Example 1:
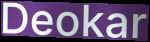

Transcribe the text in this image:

Deokar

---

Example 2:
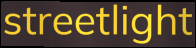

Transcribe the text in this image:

streetlight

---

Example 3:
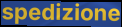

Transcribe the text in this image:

spedizione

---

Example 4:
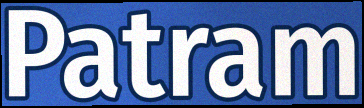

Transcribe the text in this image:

Patram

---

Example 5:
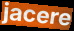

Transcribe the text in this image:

jacere